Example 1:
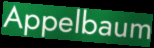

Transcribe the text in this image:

Appelbaum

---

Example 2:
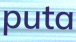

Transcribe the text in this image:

puta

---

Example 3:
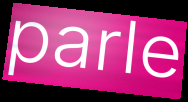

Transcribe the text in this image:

parle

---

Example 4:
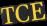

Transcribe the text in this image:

TCE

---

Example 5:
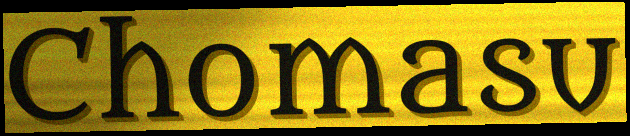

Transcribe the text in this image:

Chomasu